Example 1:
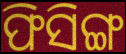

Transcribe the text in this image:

ଫିସିଙ୍ଗ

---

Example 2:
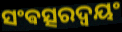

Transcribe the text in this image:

ସଂଵତ୍ସରଦ୍ଵୟଂ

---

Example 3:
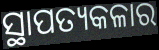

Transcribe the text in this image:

ସ୍ଥାପତ୍ୟକଳାର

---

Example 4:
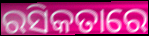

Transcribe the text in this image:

ରସିକତାରେ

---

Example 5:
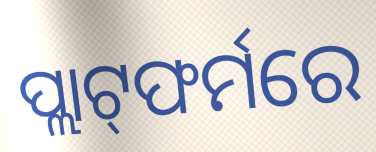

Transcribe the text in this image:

ପ୍ଲାଟ୍‌ଫର୍ମରେ